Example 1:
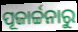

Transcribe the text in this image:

ପୂଜାର୍ଚ୍ଚନାରୁ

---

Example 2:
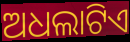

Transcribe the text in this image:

ଅଧଲାଟିଏ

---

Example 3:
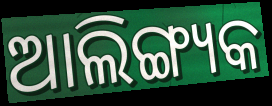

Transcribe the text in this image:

ଆଲିଙ୍ଗ୍ୟକ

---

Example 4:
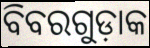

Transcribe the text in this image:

ବିବରଗୁଡ଼ାକ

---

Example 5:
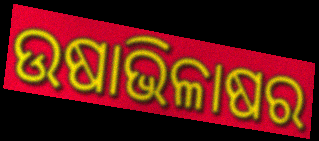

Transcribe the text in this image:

ଉଷାଭିଳାଷର